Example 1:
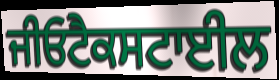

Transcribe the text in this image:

ਜੀਓਟੈਕਸਟਾਈਲ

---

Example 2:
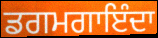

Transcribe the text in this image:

ਡਗਮਗਾਇੰਦਾ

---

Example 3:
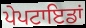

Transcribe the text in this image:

ਪੇਪਟਾਇਡਾਂ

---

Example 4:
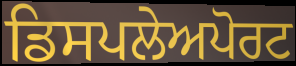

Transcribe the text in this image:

ਡਿਸਪਲੇਅਪੋਰਟ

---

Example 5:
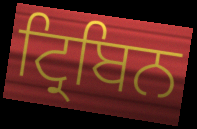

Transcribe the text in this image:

ਟ੍ਰਿਬਿਨ